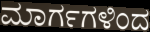
ಮಾರ್ಗಗಳಿಂದ